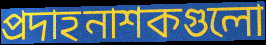
প্রদাহনাশকগুলো